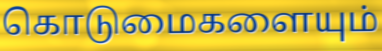
கொடுமைகளையும்